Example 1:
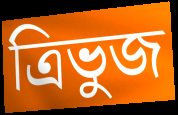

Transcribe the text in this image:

ত্রিভুজ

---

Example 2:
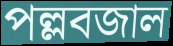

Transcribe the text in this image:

পল্লবজাল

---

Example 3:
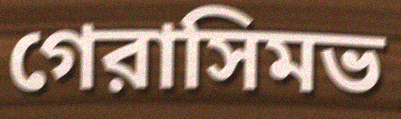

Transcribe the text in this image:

গেরাসিমভ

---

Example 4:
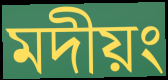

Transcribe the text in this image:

মদীয়ং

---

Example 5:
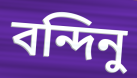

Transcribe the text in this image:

বন্দিনু